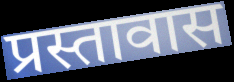
प्रस्तावास